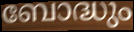
ബോദ്ധും